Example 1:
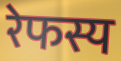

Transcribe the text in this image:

रेफस्य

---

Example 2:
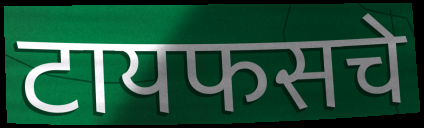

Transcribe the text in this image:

टायफसचे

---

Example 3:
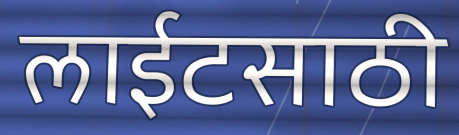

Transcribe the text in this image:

लाईटसाठी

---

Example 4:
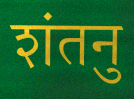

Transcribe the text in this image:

शंतनु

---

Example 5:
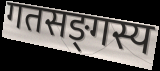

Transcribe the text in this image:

गतसङ्गस्य